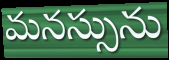
మనస్సును